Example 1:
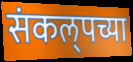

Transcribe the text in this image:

संकल्पच्या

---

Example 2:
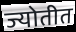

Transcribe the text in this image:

ज्योतीत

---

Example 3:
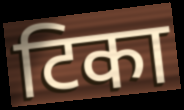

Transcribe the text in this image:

टिका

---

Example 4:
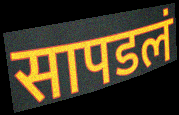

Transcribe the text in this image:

सापडलं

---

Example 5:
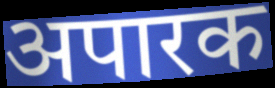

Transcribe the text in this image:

अपारक